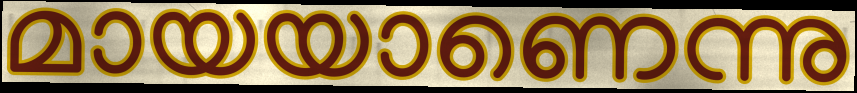
മായയാണെന്നു